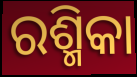
ରଶ୍ମିକା